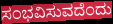
ಸಂಭವಿಸುವದೆಂದು